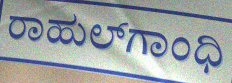
ರಾಹುಲ್‌ಗಾಂಧಿ